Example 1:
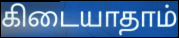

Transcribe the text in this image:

கிடையாதாம்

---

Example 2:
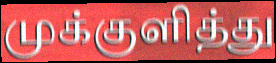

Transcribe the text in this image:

முக்குளித்து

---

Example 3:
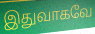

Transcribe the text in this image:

இதுவாகவே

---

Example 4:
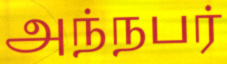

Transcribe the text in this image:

அந்நபர்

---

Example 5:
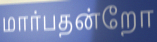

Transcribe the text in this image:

மார்பதன்றோ